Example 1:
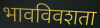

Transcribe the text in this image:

भावविवशता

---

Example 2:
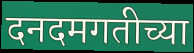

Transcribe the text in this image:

दनदमगतीच्या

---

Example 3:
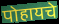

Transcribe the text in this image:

पोहायचे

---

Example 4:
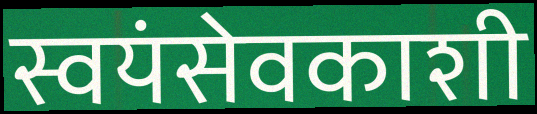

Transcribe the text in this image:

स्वयंसेवकाशी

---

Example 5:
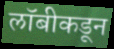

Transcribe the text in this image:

लॉबीकडून